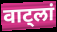
वाट्लां